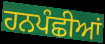
ਹਨਪੰਛੀਆਂ